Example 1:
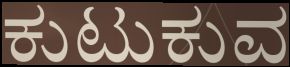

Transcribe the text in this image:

ಕುಟುಕುವ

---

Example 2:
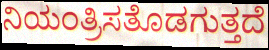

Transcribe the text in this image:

ನಿಯಂತ್ರಿಸತೊಡಗುತ್ತದೆ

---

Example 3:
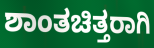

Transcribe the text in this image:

ಶಾಂತಚಿತ್ತರಾಗಿ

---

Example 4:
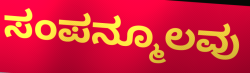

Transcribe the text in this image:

ಸಂಪನ್ಮೂಲವು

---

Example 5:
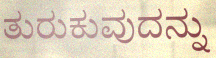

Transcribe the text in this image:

ತುರುಕುವುದನ್ನು